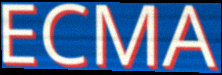
ECMA